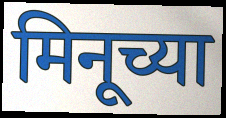
मिनूच्या